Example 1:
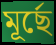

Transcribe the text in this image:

মূর্ছে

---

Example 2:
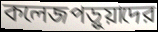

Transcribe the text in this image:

কলেজপড়ুয়াদের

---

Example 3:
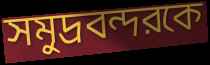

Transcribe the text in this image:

সমুদ্রবন্দরকে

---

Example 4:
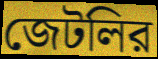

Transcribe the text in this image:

জেটলির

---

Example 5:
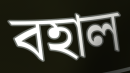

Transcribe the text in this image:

বহাল